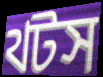
থটস